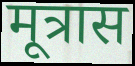
मूत्रास